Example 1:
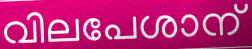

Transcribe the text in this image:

വിലപേശാന്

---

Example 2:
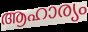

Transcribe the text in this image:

ആഹാര്യം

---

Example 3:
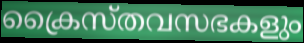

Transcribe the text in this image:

ക്രൈസ്തവസഭകളും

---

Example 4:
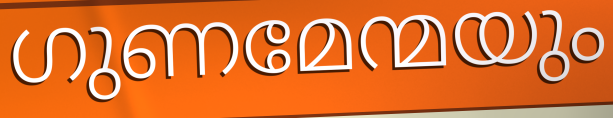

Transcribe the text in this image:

ഗുണമേന്മയും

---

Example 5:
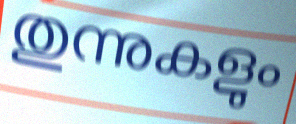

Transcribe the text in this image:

തുന്നുകളും